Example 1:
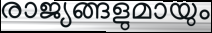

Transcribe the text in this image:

രാജ്യങ്ങളുമായും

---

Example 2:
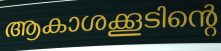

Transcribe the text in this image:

ആകാശക്കൂടിന്റെ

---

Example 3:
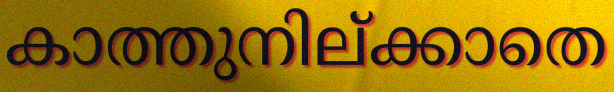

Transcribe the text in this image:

കാത്തുനില്ക്കാതെ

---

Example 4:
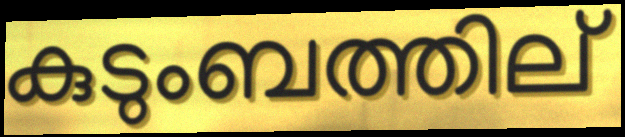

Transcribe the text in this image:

കുടുംബത്തില്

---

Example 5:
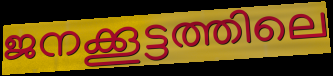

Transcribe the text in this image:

ജനക്കൂട്ടത്തിലെ